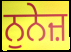
ਨੁਨੇਜ਼